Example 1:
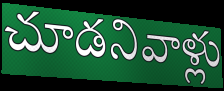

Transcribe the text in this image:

చూడనివాళ్లు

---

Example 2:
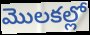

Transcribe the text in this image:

మొలకల్లో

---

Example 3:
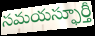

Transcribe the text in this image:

సమయస్ఫూర్తీ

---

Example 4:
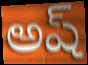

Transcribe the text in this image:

అష్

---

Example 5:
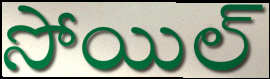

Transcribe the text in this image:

సోయిల్